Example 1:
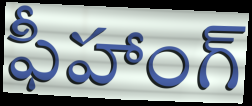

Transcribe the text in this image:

ఫీహాంగ్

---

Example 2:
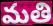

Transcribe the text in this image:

మతి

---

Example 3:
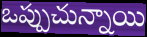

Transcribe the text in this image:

ఒప్పుచున్నాయి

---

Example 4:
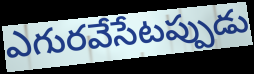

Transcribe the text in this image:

ఎగురవేసేటప్పుడు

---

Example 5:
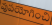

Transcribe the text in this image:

వుపయోగించి